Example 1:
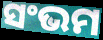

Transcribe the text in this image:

ସଂଭମ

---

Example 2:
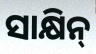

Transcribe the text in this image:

ସାକ୍ଷିନ୍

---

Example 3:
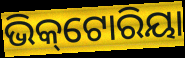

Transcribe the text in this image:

ଭିକ୍‌ଟୋରିୟା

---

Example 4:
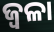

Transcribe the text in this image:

ଜ୍ୱଳା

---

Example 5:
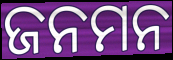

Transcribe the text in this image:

ଜନମନ